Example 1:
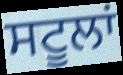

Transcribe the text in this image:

ਸਟੂਲਾਂ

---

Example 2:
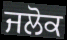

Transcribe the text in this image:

ਜਲੋਕ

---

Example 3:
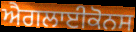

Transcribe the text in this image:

ਐਗਲਾਈਕੋਨਸ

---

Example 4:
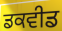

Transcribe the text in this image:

ਡਕਵੀਡ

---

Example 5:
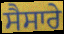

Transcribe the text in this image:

ਸੈਸਾਰੇ